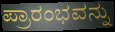
ಪ್ರಾರಂಭವನ್ನು